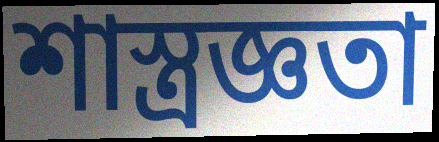
শাস্ত্রজ্ঞতা